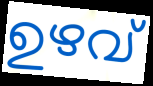
ഉഴവ്